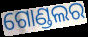
ଗୋଣ୍ଡଲର